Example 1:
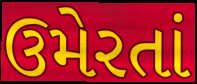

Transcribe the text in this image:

ઉમેરતાં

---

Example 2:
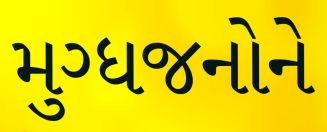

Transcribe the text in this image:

મુગ્ધજનોને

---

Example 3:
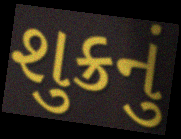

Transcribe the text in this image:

શુક્રનું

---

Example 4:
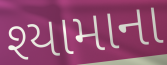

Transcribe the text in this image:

શ્યામાના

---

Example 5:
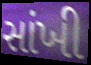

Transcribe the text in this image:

સાંખી